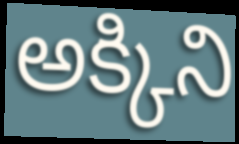
అక్కిని